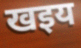
खइय